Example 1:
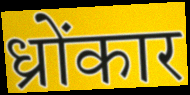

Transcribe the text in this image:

ध्रोंकार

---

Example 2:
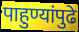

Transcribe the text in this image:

पाहुण्यांपुढे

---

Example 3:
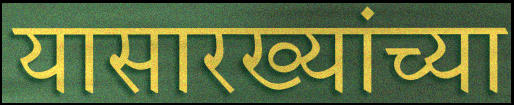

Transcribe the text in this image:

यासारख्यांच्या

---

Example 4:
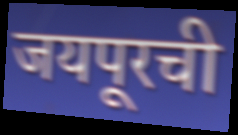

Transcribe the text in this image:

जयपूरची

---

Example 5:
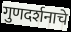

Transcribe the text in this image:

गुणदर्शनाचे